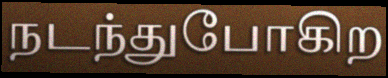
நடந்துபோகிற